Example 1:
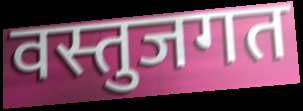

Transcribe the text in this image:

वस्तुजगत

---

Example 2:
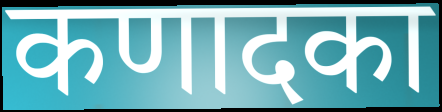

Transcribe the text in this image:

कणादका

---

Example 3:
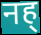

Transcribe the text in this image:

नह्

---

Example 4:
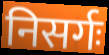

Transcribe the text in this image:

निसर्गः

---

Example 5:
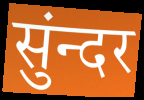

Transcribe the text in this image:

सुंन्दर